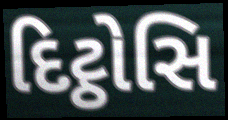
દિટ્ઠોસિ